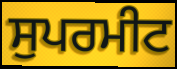
ਸੁਪਰਮੀਟ